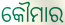
କୌମାର